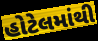
હોટેલમાંથી